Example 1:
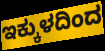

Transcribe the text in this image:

ಇಕ್ಕುಳದಿಂದ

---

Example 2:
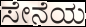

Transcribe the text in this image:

ಸೇನೆಯ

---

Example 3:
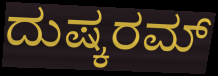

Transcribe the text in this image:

ದುಷ್ಕರಮ್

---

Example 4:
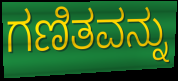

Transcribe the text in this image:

ಗಣಿತವನ್ನು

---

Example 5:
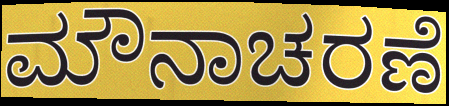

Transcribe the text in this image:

ಮೌನಾಚರಣೆ